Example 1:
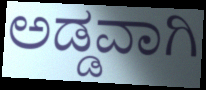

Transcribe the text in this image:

ಅಡ್ಡವಾಗಿ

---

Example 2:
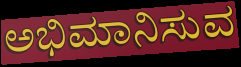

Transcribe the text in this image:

ಅಭಿಮಾನಿಸುವ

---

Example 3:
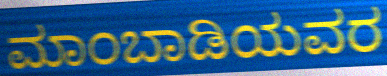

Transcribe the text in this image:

ಮಾಂಬಾಡಿಯವರ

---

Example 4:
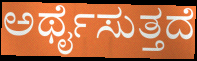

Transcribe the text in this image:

ಅರ್ಥೈಸುತ್ತದೆ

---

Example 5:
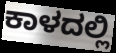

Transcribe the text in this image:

ಕಾಳದಲ್ಲಿ